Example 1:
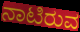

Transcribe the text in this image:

ನಾಟಿರುವ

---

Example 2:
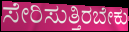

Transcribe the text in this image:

ಸೇರಿಸುತ್ತಿರಬೇಕು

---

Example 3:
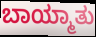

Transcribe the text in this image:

ಬಾಯ್ಮಾತು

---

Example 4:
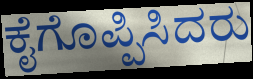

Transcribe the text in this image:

ಕೈಗೊಪ್ಪಿಸಿದರು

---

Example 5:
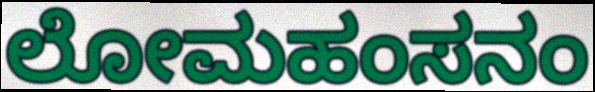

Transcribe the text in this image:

ಲೋಮಹಂಸನಂ